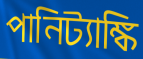
পানিট্যাঙ্কি